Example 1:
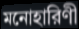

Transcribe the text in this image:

মনোহারিণী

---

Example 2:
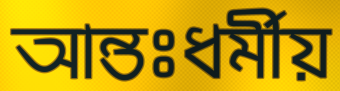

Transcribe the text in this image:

আন্তঃধর্মীয়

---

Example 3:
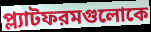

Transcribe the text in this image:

প্ল্যাটফরমগুলোকে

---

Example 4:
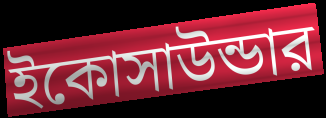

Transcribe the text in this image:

ইকোসাউন্ডার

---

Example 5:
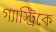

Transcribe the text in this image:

গ্যাস্ট্রিকে